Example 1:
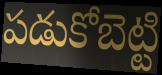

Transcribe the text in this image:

పడుకోబెట్టి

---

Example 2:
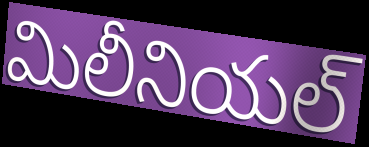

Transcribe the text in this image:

మిలీనియల్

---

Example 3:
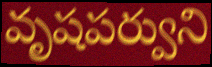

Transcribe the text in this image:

వృషపర్వుని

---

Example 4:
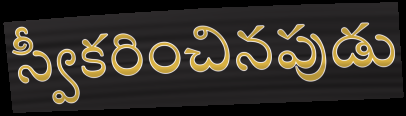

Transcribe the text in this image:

స్వీకరించినపుడు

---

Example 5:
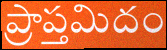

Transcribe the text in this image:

ప్రాప్తమిదం